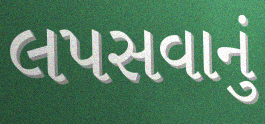
લપસવાનું